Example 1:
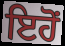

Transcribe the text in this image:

ਇਹੋਂ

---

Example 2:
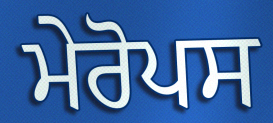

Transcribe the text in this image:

ਮੇਰੋਪਸ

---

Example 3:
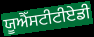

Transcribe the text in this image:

ਯੂਐੱਸਟੀਟੀਏਡੀ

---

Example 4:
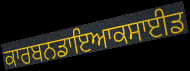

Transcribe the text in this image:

ਕਾਰਬਨਡਾਇਆਕਸਾਈਡ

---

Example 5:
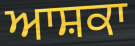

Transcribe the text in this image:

ਆਸ਼ਕਾ